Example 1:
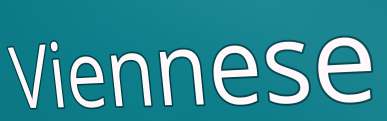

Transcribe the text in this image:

Viennese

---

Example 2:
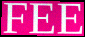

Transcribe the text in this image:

FEE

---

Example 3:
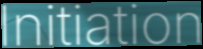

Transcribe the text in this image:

Initiation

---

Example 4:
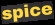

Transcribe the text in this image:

spice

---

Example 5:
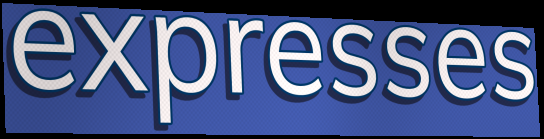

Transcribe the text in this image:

expresses